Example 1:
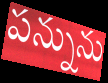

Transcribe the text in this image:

పన్నును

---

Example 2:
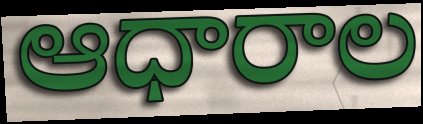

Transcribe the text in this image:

ఆధారాల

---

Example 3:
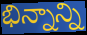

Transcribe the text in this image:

భిన్నాన్ని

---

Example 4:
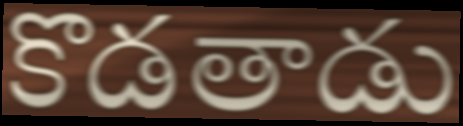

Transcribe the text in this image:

కొడతాడు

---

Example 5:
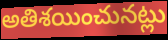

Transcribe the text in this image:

అతిశయించునట్లు